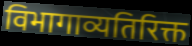
विभागाव्यतिरिक्त